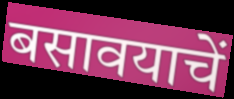
बसावयाचें